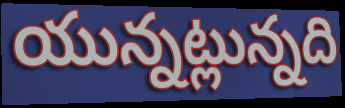
యున్నట్లున్నది